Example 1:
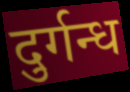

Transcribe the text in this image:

दुर्गन्‍ध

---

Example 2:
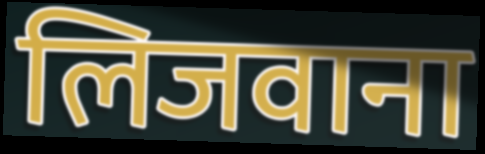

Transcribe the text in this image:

लिजवाना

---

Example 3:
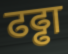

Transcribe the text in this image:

ढढ्ढा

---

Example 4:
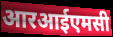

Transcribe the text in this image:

आरआईएमसी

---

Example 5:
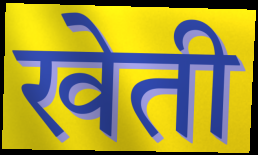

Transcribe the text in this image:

खेती